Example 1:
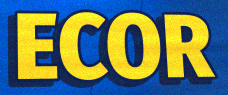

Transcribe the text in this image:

ECOR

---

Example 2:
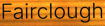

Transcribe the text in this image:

Fairclough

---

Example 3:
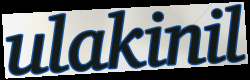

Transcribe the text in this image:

ulakinil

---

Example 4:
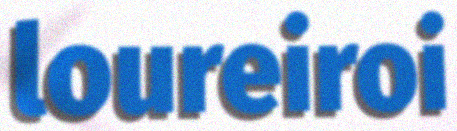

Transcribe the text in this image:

loureiroi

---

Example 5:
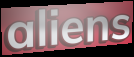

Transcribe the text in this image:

aliens